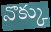
నొక్కు